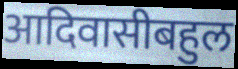
आदिवासीबहुल